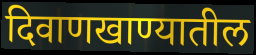
दिवाणखाण्यातील